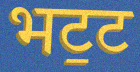
भट॒ट